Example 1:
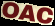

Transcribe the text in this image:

OAC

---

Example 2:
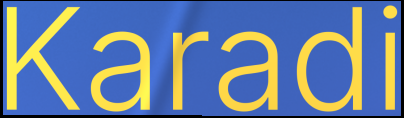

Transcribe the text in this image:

Karadi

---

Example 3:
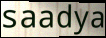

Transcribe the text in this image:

saadya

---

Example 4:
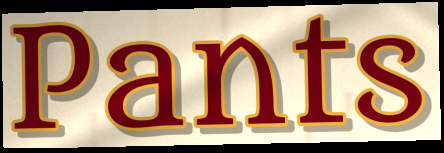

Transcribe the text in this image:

Pants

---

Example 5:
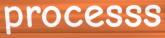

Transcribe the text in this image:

processs